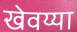
खेवय्या